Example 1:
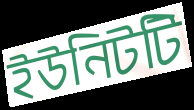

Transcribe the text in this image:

ইউনিটটি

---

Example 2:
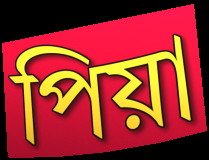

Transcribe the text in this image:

পিয়া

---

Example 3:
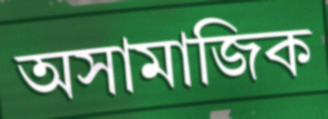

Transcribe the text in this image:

অসামাজিক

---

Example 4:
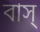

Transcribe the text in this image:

বাস্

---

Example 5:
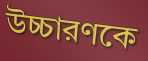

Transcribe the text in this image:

উচ্চারণকে